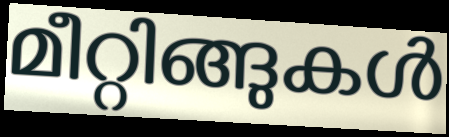
മീറ്റിങ്ങുകൾ